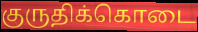
குருதிக்கொடை